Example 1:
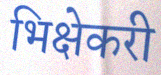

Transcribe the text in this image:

भिक्षेकरी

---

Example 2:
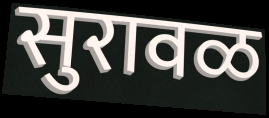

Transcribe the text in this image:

सुरावळ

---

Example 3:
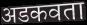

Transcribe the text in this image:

अडकवता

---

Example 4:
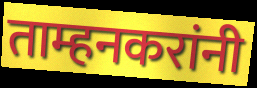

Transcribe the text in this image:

ताम्हनकरांनी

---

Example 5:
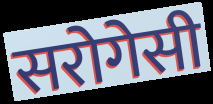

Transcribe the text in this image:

सरोगेसी